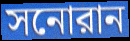
সনোরান